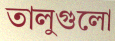
তালুগুলো